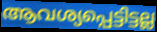
ആവശ്യപ്പെട്ടിട്ടല്ല